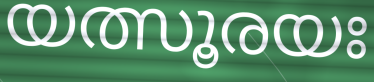
യത്സൂരയഃ